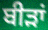
ਬੀੜਾਂ